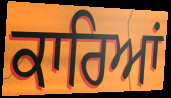
ਕਾਰਿਆਂ